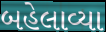
બહેલાવ્યા